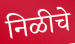
निळीचे